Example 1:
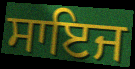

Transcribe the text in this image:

ਸਾਇਜ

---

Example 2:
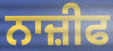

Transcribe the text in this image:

ਨਾਜ਼ੀਫ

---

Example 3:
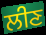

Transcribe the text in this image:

ਲੀਣ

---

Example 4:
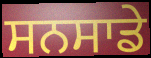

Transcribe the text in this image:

ਸਨਸਾਡੇ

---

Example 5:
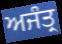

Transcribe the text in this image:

ਅਜੰਤ੍ਰ